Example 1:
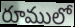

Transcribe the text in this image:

రూములో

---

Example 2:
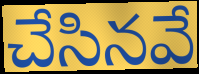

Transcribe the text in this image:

చేసినవే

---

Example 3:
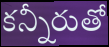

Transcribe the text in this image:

కన్నీరుతో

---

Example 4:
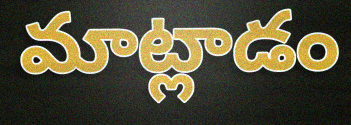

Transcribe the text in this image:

మాట్లాడం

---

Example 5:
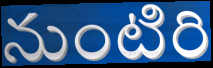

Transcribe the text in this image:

నుంటిరి